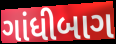
ગાંધીબાગ